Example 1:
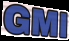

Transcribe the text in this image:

GMI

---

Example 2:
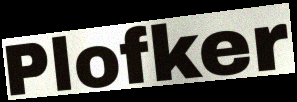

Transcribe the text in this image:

Plofker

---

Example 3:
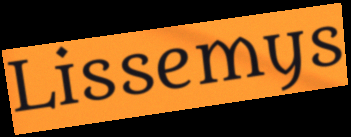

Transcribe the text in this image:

Lissemys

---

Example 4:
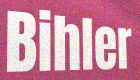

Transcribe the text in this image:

Bihler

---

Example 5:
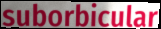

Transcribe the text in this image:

suborbicular